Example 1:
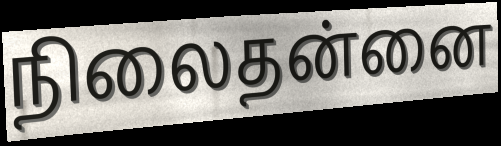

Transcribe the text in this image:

நிலைதன்னை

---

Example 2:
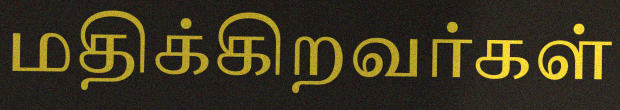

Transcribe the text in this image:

மதிக்கிறவர்கள்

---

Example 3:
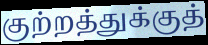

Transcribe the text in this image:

குற்றத்துக்குத்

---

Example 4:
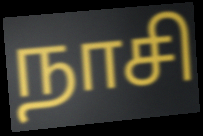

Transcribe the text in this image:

நாசி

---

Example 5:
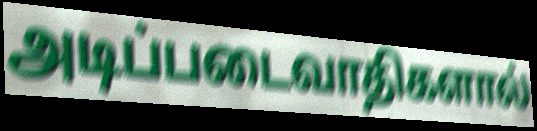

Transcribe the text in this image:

அடிப்படைவாதிகளால்